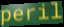
peril